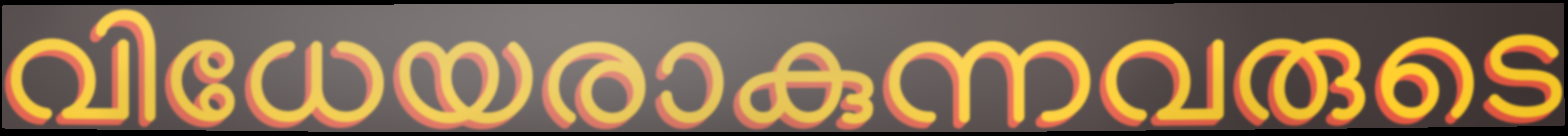
വിധേയരാകുന്നവരുടെ